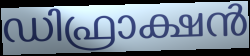
ഡിഫ്രാക്ഷൻ